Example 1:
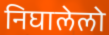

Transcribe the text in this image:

निघालेलो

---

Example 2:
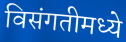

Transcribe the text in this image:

विसंगतीमध्ये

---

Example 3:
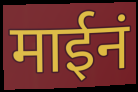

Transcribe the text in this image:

माईनं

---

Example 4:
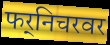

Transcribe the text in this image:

फर्निचरवर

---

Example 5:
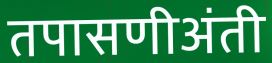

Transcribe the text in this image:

तपासणीअंती